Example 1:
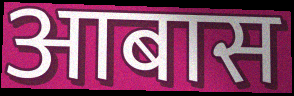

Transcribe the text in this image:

आबास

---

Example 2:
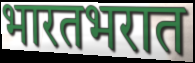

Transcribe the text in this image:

भारतभरात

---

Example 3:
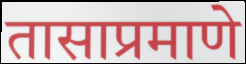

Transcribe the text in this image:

तासाप्रमाणे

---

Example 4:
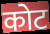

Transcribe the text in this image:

कोट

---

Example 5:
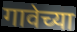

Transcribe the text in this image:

गावेच्या